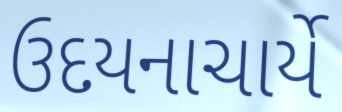
ઉદયનાચાર્યે